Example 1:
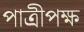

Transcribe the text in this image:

পাত্রীপক্ষ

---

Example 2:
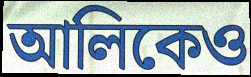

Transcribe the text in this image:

আলিকেও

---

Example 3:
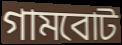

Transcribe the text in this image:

গামবোট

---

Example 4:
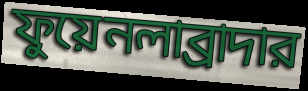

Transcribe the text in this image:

ফুয়েনলাব্রাদার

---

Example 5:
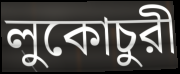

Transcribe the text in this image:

লুকোচুরী